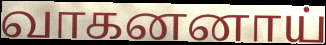
வாகனனாய்